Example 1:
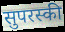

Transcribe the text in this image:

सुपरस्की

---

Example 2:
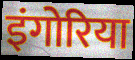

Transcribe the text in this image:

इंगोरिया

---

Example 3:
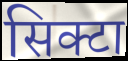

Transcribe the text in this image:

सिक्टा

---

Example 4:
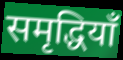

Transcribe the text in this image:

समृद्धियाँ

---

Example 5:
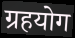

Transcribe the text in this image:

ग्रहयोग